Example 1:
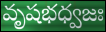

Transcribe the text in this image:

వృషభధ్వజః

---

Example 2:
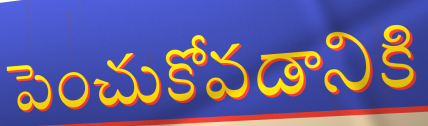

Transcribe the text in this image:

పెంచుకోవడానికి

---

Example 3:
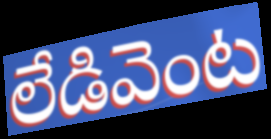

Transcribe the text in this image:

లేడివెంట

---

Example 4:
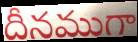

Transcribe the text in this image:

దీనముగా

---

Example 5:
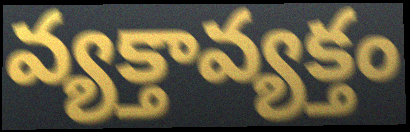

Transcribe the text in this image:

వ్యక్తావ్యక్తం